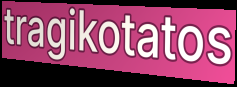
tragikotatos